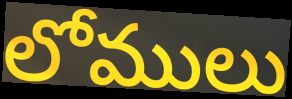
లోములు